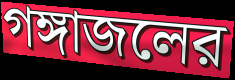
গঙ্গাজলের